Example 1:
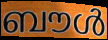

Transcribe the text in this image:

ബൗൾ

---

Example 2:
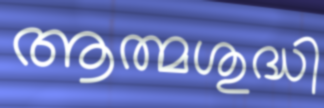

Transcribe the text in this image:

ആത്മശുദ്ധി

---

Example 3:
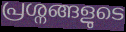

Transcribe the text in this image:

പ്രശ്നങ്ങളുടെ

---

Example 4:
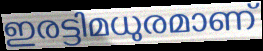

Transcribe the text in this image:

ഇരട്ടിമധുരമാണ്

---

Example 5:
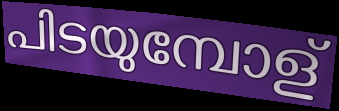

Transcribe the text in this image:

പിടയുമ്പോള്